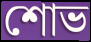
শোভ